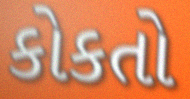
કોકતો